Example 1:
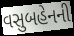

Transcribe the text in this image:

વસુબહેનની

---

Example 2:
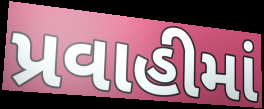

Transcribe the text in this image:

પ્રવાહીમાં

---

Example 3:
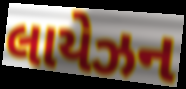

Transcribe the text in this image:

લાયેઝન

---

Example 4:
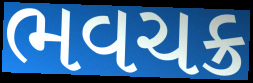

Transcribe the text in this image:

ભવચક્ર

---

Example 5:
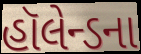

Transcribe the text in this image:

હૉલેન્ડના